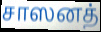
சாஸனத்